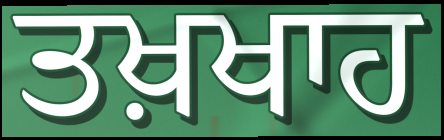
ਤਖ਼ਖਾਹ